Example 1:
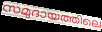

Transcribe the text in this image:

സമുദായത്തിലെ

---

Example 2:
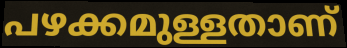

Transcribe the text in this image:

പഴക്കമുള്ളതാണ്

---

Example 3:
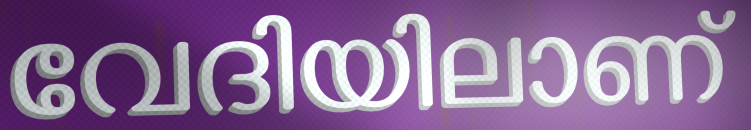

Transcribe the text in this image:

വേദിയിലാണ്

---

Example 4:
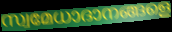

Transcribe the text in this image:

സ്വമേധാദാനങ്ങളെ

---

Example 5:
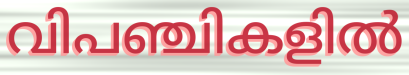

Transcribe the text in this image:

വിപഞ്ചികളിൽ